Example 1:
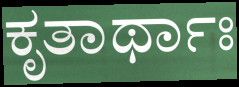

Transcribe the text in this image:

ಕೃತಾರ್ಥಾಃ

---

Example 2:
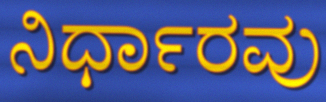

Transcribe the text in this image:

ನಿರ್ಧಾರವು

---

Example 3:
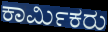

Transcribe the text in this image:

ಕಾರ್ಮಿಕರು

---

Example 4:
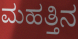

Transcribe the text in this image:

ಮಹತ್ತಿನ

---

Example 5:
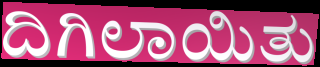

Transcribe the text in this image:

ದಿಗಿಲಾಯಿತು